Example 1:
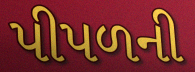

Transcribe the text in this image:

પીપળની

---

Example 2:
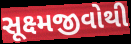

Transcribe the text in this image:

સૂક્ષ્મજીવોથી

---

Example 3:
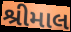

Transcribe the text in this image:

શ્રીમાલ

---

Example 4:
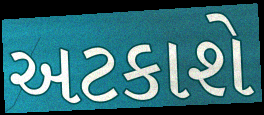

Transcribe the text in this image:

અટકાશે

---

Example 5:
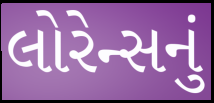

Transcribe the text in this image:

લોરેન્સનું